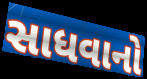
સાધવાનો